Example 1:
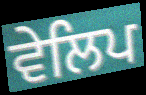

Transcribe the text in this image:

ਵੇਲਿਪ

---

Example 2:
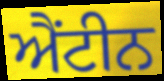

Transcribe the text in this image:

ਐਂਟੀਨ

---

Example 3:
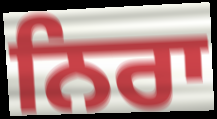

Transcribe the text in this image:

ਨਿਰਾ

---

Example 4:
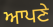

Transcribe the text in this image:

ਆਪਣੇ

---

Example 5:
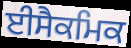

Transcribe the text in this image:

ਈਸੈਕਮਿਕ